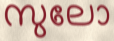
സുലോ